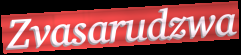
Zvasarudzwa